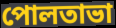
পোলতাভা